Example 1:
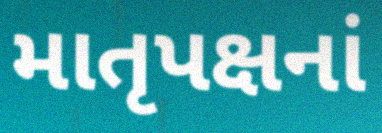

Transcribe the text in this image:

માતૃપક્ષનાં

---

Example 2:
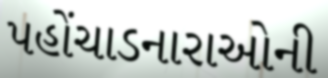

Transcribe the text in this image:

પહોંચાડનારાઓની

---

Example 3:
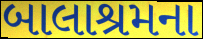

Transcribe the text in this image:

બાલાશ્રમના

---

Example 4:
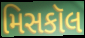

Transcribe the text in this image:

મિસકૉલ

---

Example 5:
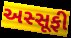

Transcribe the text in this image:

અસ્સૂફી